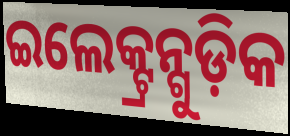
ଇଲେକ୍ଟ୍ରନ୍ଗୁଡ଼ିକ